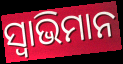
ସ୍ୱାଭିମାନ